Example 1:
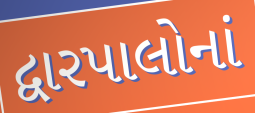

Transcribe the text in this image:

દ્વારપાલોનાં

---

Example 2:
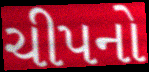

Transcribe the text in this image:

ચીપનો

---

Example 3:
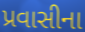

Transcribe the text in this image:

પ્રવાસીના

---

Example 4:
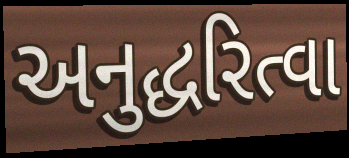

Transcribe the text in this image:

અનુદ્ધરિત્વા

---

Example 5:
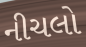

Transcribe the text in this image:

નીચલો